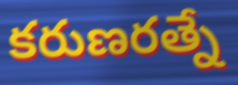
కరుణరత్నే